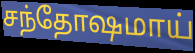
சந்தோஷமாய்